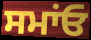
ਸਮਾਂਓ